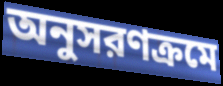
অনুসরণক্রমে